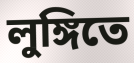
লুঙ্গিতে